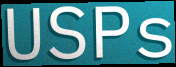
USPs